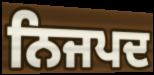
ਨਿਜਪਦ